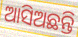
ଆସିଅଛନ୍ତି